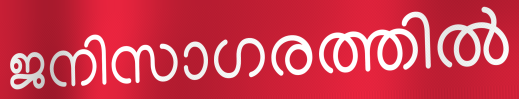
ജനിസാഗരത്തിൽ